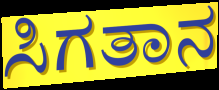
ಸಿಗತಾನ